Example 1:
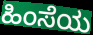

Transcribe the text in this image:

ಹಿಂಸೆಯ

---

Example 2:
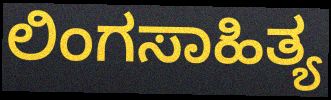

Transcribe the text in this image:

ಲಿಂಗಸಾಹಿತ್ಯ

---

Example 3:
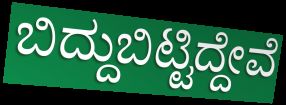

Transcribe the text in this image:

ಬಿದ್ದುಬಿಟ್ಟಿದ್ದೇವೆ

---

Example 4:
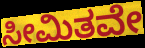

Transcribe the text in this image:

ಸೀಮಿತವೇ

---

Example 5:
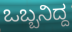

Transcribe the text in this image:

ಒಬ್ಬನಿದ್ದ